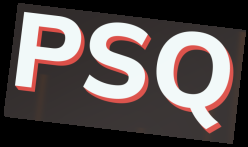
PSQ